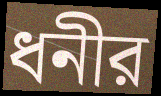
ধনীর